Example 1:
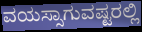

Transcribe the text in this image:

ವಯಸ್ಸಾಗುವಷ್ಟರಲ್ಲಿ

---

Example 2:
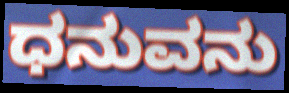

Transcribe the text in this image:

ಧನುವನು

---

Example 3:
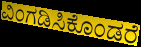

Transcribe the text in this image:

ವಿಂಗಡಿಸಿಕೊಂಡರೆ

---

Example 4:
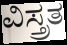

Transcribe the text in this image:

ವಿಸ್ತ್ರತ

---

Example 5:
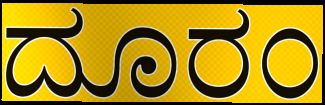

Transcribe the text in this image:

ದೂರಂ